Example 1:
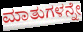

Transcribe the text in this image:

ಮಾತುಗಳನ್ನೇ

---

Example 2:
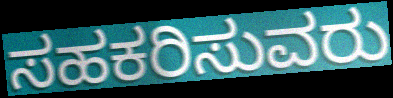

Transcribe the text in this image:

ಸಹಕರಿಸುವರು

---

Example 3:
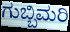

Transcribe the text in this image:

ಗುಬ್ಬಿಮರಿ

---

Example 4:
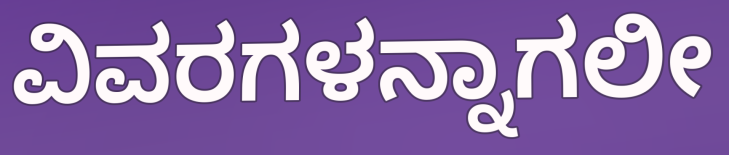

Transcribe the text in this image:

ವಿವರಗಳನ್ನಾಗಲೀ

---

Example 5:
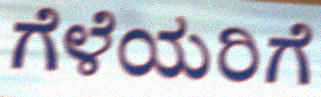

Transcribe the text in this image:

ಗೆಳೆಯರಿಗೆ